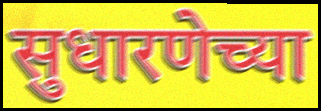
सुधारणेच्या